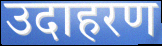
उदाहरण